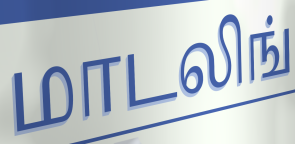
மாடலிங்